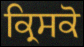
ਕ੍ਰਿਸਕੋ